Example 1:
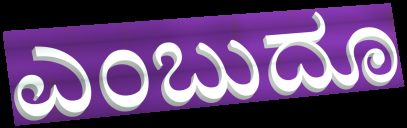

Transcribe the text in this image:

ಎಂಬುದೂ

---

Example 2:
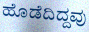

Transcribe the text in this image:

ಹೊಡೆದಿದ್ದವು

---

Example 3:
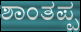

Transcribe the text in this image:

ಶಾಂತಪ್ಪ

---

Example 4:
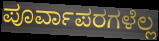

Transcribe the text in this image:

ಪೂರ್ವಾಪರಗಳೆಲ್ಲ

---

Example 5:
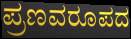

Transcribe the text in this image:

ಪ್ರಣವರೂಪದ